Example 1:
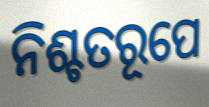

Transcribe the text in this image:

ନିଶ୍ଚତରୂପେ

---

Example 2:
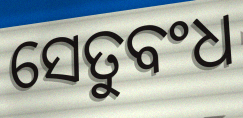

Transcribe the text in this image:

ସେତୁବଂଧ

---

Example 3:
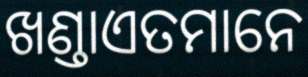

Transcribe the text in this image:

ଖଣ୍ଡାଏତମାନେ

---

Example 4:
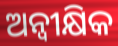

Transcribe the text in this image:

ଅନ୍ୱୀକ୍ଷିକ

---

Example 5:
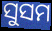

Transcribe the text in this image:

ସୁସମ